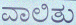
ವಾಲಿತು